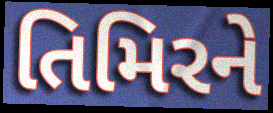
તિમિરને